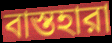
বাস্তহারা